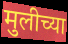
मुलीच्या